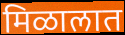
मिळालात